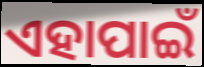
ଏହାପାଇଁ